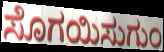
ಸೊಗಯಿಸುಗುಂ